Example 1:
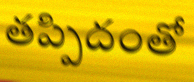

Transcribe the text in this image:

తప్పిదంతో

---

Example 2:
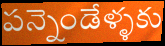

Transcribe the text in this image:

పన్నెండేళ్ళకు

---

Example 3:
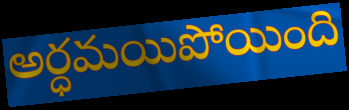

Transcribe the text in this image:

అర్ధమయిపోయింది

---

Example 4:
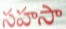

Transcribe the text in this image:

సహసా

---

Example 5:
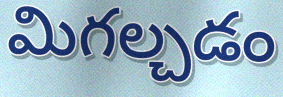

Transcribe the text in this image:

మిగల్చడం